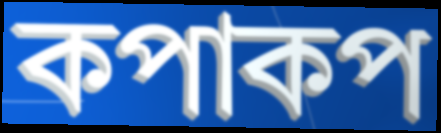
কপাকপ